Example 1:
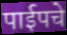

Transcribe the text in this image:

पाईपचे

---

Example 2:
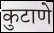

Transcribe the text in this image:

कुटाणे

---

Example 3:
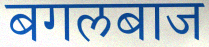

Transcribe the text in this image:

बगलबाज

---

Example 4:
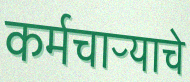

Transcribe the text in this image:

कर्मचाऱ्याचे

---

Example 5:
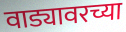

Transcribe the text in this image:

वाड्यावरच्या